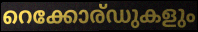
റെക്കോര്ഡുകളും